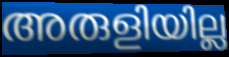
അരുളിയില്ല